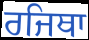
ਰਜਿਥਾ